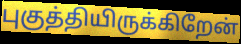
புகுத்தியிருக்கிறேன்